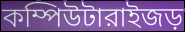
কম্পিউটারাইজড়